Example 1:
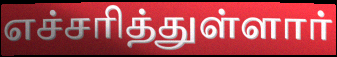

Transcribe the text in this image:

எச்சரித்துள்ளார்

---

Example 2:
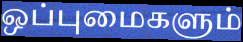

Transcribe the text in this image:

ஒப்புமைகளும்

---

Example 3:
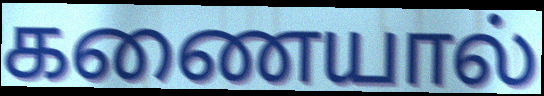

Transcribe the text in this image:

கணையால்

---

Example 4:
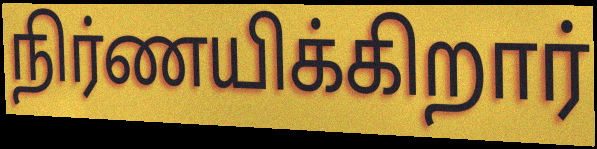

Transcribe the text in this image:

நிர்ணயிக்கிறார்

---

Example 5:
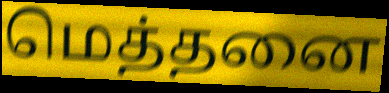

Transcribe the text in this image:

மெத்தனை